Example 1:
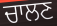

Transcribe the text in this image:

ਚਾਲਣ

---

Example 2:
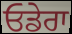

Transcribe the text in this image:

ਓਡੇਰਾ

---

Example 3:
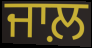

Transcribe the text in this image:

ਜਾਲ਼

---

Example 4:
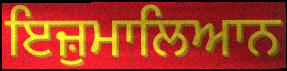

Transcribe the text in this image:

ਇਜ਼ੁਮਾਲਿਆਨ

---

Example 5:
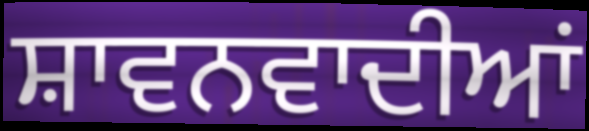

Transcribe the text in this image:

ਸ਼ਾਵਨਵਾਦੀਆਂ